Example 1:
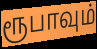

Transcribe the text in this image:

ரூபாவும்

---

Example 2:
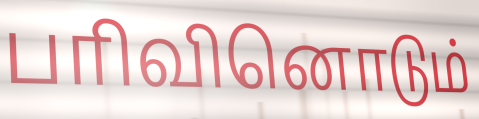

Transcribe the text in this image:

பரிவினொடும்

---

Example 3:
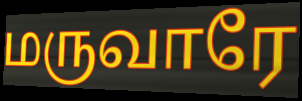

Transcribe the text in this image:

மருவாரே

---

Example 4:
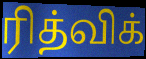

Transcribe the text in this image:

ரித்விக்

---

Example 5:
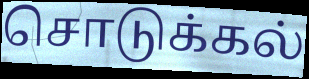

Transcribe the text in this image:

சொடுக்கல்